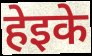
हेइके